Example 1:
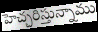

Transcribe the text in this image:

హెచ్చరిస్తున్నాము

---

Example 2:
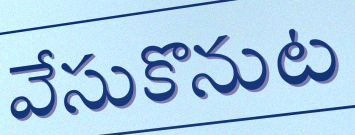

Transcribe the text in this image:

వేసుకొనుట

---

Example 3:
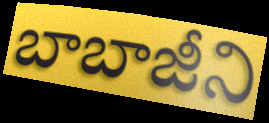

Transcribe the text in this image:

బాబాజీని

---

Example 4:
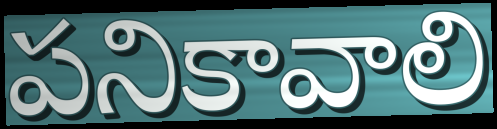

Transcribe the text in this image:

పనికావాలి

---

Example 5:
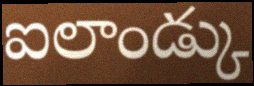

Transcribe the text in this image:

ఐలాండ్కు